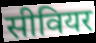
सीवियर